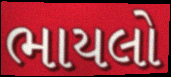
ભાયલો